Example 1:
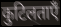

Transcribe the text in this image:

कुटिलताएँ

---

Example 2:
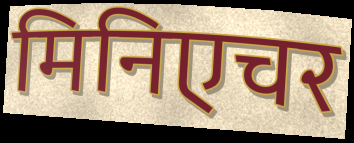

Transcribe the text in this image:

मिनिएचर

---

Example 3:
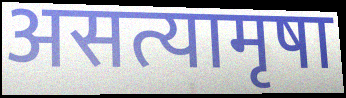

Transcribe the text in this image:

असत्यामृषा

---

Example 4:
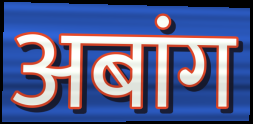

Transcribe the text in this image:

अबांग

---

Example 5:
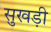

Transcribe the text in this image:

सुखड़ी